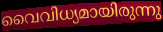
വൈവിധ്യമായിരുന്നു